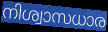
നിശ്വാസധാര